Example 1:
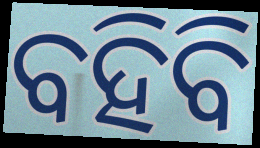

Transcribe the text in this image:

ବହିବି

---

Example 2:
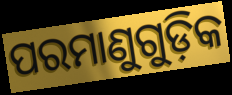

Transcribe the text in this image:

ପରମାଣୁଗୁଡ଼ିକ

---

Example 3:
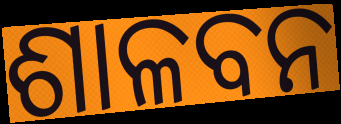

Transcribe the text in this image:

ଶାଳବନ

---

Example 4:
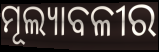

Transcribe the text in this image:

ମୂଲ୍ୟାବଳୀର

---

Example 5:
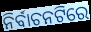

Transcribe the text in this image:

ନିର୍ବାଚନଟିରେ